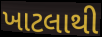
ખાટલાથી